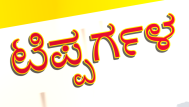
ಟಿಪ್ಪರ್ಗಳ